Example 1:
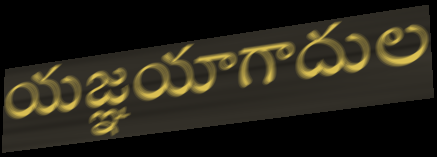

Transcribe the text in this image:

యజ్ఞయాగాదుల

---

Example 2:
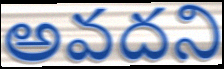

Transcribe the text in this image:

అవదని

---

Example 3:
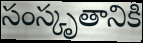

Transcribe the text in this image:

సంస్కృతానికి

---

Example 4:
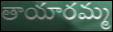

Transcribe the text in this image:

తాయారమ్మ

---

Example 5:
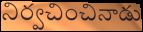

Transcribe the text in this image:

నిర్వచించినాడు